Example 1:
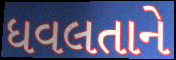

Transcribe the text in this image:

ધવલતાને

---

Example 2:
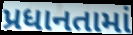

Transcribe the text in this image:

પ્રધાનતામાં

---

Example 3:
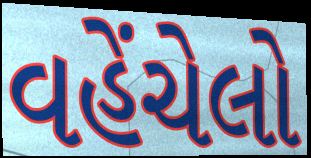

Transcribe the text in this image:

વહેંચેલો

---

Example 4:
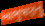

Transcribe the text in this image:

આભુષણનું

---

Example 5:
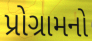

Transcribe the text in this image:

પ્રોગ્રામનો